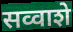
सव्वाशे